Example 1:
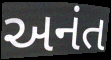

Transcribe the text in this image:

અનંત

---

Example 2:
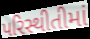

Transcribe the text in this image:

પરિસ્થીતીમાં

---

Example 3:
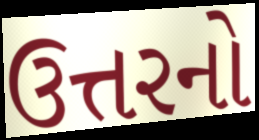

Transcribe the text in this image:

ઉત્તરનો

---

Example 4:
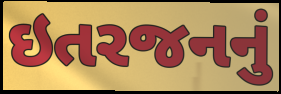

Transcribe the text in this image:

ઇતરજનનું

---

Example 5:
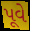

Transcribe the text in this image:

પૂવે